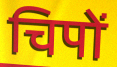
चिपों